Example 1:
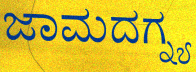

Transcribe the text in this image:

ಜಾಮದಗ್ನ್ಯ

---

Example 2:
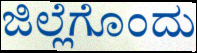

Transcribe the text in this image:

ಜಿಲ್ಲೆಗೊಂದು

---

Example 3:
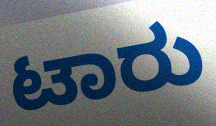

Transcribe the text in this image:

ಟಾರು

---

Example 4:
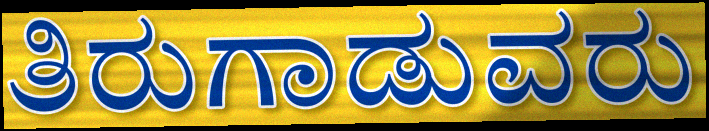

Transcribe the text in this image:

ತಿರುಗಾಡುವರು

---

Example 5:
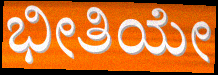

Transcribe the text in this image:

ಭೀತಿಯೇ